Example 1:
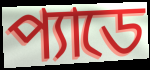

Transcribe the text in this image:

প্যাডে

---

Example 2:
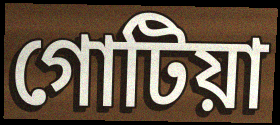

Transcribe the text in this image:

গোটিয়া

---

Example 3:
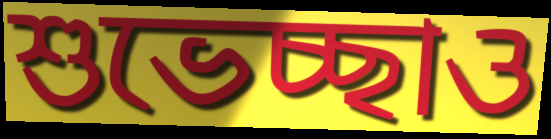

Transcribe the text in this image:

শুভেচ্ছাও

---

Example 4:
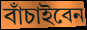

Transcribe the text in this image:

বাঁচাইবেন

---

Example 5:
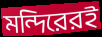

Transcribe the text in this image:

মন্দিরেরই